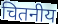
चितनीय